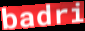
badri